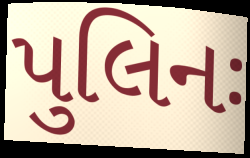
પુલિનઃ